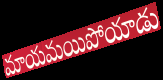
మాయమయిపోయాడు